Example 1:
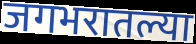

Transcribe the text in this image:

जगभरातल्या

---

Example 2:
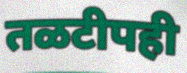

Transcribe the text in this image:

तळटीपही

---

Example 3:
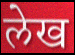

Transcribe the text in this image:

लेख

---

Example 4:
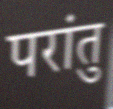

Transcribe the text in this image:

परांतु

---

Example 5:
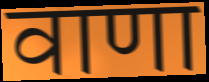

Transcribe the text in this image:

वाणा